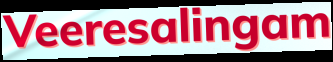
Veeresalingam